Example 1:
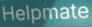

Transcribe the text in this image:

Helpmate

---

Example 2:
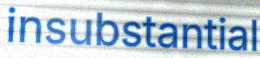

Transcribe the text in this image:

insubstantial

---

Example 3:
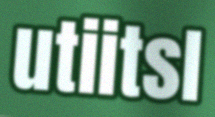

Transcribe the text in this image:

utiitsl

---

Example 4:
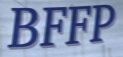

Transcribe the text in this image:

BFFP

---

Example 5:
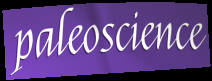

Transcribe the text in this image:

paleoscience